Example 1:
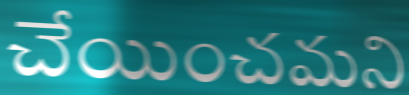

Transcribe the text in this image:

చేయించమని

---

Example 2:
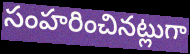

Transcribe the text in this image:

సంహరించినట్లుగా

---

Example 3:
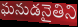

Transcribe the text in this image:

ఘనుడనైతిని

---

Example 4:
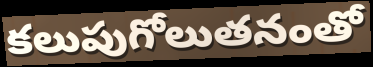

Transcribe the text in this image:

కలుపుగోలుతనంతో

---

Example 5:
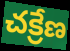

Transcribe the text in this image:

చక్రేణ